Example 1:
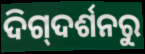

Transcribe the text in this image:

ଦିଗ୍‌ଦର୍ଶନରୁ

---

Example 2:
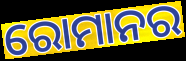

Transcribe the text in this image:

ରୋମାନର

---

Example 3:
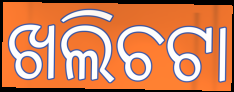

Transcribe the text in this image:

ଖଲିଚଟା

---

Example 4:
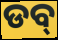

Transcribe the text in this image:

ଡବ୍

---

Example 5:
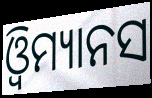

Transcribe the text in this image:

ଓ୍ବିମ୍ୟାନସ